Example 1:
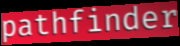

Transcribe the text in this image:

pathfinder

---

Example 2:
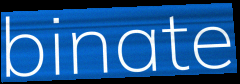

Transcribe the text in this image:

binate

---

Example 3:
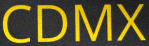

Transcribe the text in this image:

CDMX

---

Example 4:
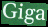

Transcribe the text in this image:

Giga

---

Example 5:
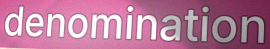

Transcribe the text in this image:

denomination